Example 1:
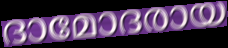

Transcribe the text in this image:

ദാമോദരായ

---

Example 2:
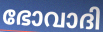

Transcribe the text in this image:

ഭോവാദി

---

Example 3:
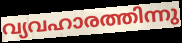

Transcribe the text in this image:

വ്യവഹാരത്തിന്നു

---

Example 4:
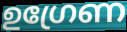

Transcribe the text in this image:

ഉഗ്രേണ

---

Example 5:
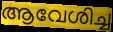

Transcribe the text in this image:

ആവേശിച്ച